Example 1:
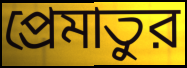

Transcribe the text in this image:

প্রেমাতুর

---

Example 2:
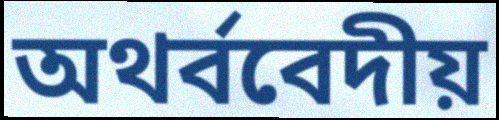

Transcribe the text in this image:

অথর্ববেদীয়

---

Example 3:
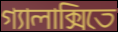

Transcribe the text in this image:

গ্যালাক্সিতে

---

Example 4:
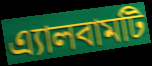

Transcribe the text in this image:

এ্যালবামটি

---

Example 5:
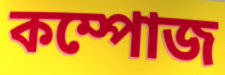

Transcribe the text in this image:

কম্পোজ